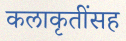
कलाकृतींसह